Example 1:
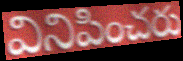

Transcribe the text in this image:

వినిపించరు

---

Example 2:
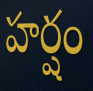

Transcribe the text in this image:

హర్షం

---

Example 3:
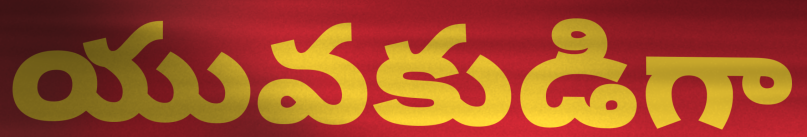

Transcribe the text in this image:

యువకుడిగా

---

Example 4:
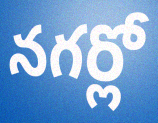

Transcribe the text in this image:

నగర్లో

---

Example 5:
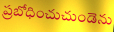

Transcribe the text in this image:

ప్రబోధించుచుండెను